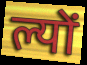
ल्यों